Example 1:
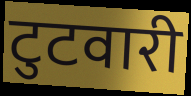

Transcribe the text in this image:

टुटवारी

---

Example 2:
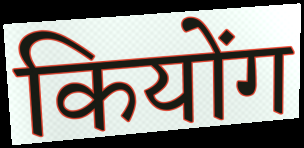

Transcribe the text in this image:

कियोंग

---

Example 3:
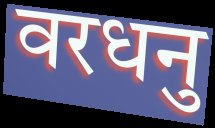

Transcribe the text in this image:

वरधनु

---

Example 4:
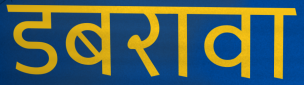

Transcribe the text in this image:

डबरावा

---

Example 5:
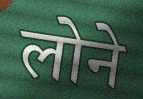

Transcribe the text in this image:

लोने